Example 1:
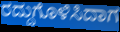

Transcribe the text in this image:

ರದ್ದುಗೊಳಿಸಿದಾಗ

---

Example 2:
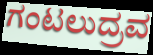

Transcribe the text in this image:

ಗಂಟಲುದ್ರವ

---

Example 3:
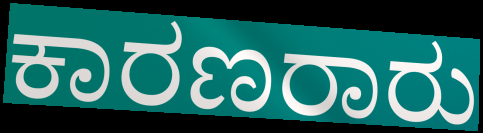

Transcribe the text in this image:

ಕಾರಣರಾರು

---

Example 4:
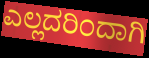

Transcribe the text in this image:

ಎಲ್ಲದರಿಂದಾಗಿ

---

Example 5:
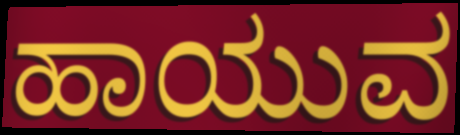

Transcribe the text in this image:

ಹಾಯುವ